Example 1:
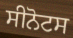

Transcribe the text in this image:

ਸੀਨੋਟਸ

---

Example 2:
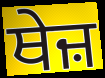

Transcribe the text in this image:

ਥੇਜ਼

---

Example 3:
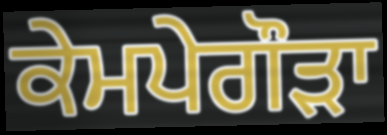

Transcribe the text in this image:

ਕੇਮਪੇਗੌੜਾ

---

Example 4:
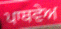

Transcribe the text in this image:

ਪਾਥਵੇਅ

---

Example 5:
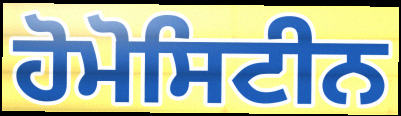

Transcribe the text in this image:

ਹੋਮੋਸਿਟੀਨ